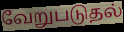
வேறுபடுதல்